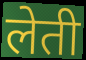
लेती